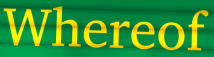
Whereof